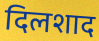
दिलशाद